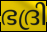
ഭദ്രി